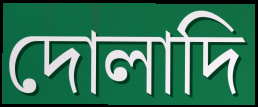
দোলাদি